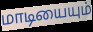
மாடியையும்